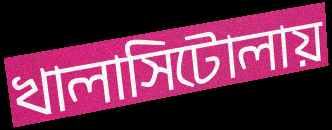
খালাসিটোলায়